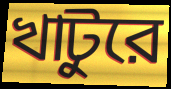
খাটুরে